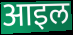
आइल